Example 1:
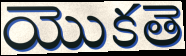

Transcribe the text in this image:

యొకతె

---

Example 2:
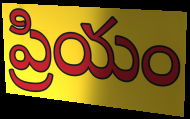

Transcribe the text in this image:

ప్రియం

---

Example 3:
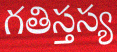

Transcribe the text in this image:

గతిస్తస్య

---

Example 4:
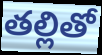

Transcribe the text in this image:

తల్లితో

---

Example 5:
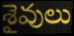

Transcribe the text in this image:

శైవులు